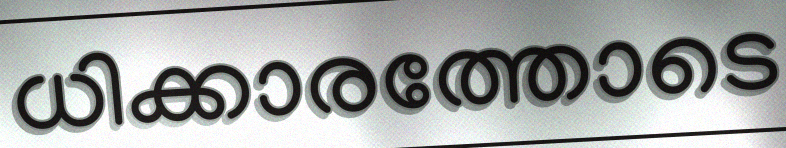
ധിക്കാരത്തോടെ